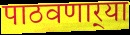
पाठवणार्या